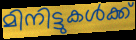
മിനിട്ടുകൾക്ക്